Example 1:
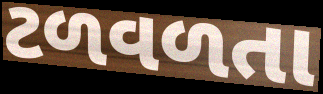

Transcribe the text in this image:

ટળવળતા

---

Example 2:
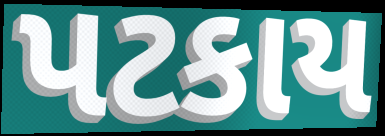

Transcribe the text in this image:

પટકાય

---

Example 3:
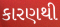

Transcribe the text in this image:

કારણથી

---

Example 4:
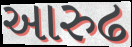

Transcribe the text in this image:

આરુઢ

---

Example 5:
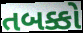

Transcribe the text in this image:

તબક્કો